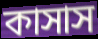
কাসাস